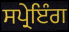
ਸਪ੍ਰੇਇੰਗ